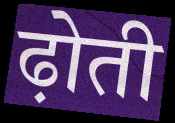
ढ़ोती